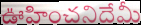
ఊహించనిదేమీ